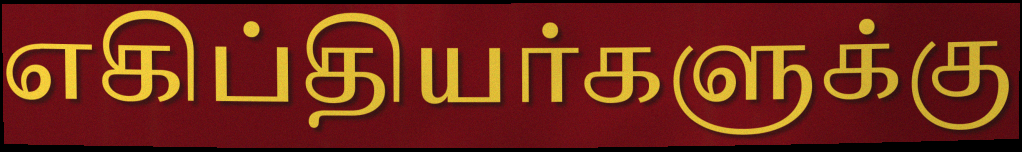
எகிப்தியர்களுக்கு